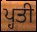
ਪ੍ਹਤੀ